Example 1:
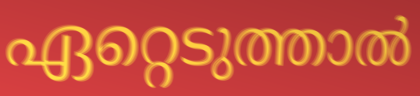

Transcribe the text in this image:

ഏറ്റെടുത്താൽ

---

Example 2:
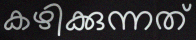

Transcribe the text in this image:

കഴിക്കുന്നത്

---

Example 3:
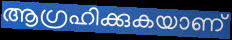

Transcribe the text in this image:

ആഗ്രഹിക്കുകയാണ്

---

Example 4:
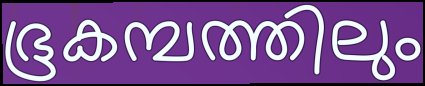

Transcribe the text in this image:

ഭൂകമ്പത്തിലും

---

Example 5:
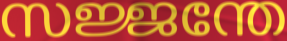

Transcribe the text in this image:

സജ്ജന്തേ